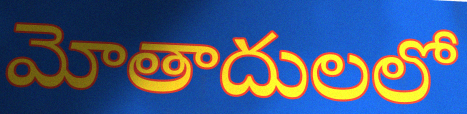
మోతాదులలో